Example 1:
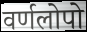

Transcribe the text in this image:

वर्णलोपो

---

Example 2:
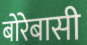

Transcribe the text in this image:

बोरेबासी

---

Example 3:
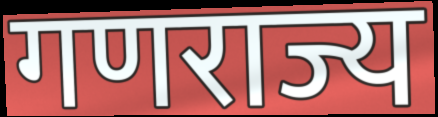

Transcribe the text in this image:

गणराज्य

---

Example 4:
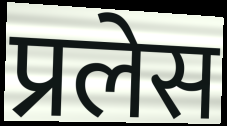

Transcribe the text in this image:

प्रलेस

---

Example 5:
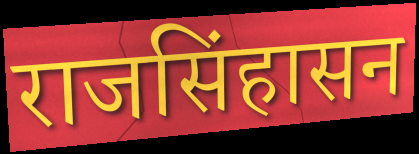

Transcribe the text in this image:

राजसिंहासन